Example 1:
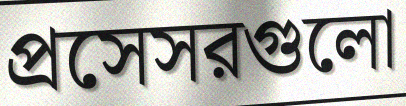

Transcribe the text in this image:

প্রসেসরগুলো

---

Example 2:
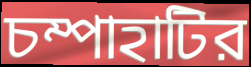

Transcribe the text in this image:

চম্পাহাটির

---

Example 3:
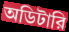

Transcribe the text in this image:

অডিটারি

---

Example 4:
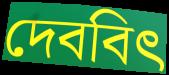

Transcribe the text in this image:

দেববিৎ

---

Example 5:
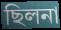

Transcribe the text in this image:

ছিলনা